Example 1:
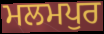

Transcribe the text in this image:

ਮਲਮਪੁਰ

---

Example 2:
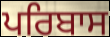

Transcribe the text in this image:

ਪਰਿਬਾਸ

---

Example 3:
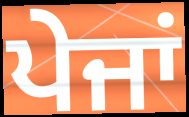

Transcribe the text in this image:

ਪੇਜਾਂ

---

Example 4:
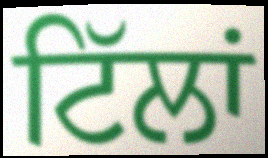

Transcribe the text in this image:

ਟਿੱਲਾਂ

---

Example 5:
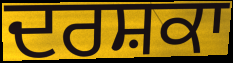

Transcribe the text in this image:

ਦਰਸ਼ਕਾ